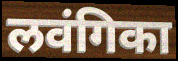
लवंगिका